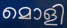
മൊളി